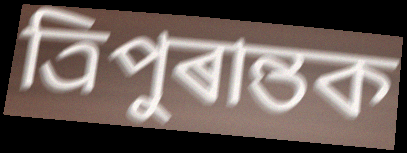
ত্ৰিপুৰান্তক